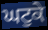
ਘਟੁਕੇ